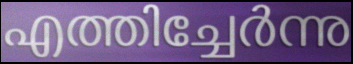
എത്തിച്ചേർന്നു